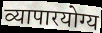
व्यापारयोग्य